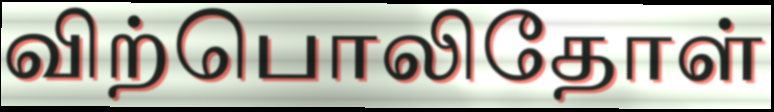
விற்பொலிதோள்